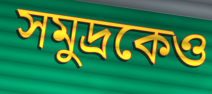
সমুদ্রকেও